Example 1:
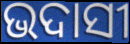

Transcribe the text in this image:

ଭଦାସୀ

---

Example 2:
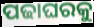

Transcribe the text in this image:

ପଢାଘରକୁ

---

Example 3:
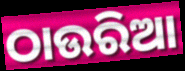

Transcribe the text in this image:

ଠାଉରିଆ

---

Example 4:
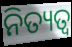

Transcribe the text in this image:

ନିତ୍ୟତ୍ୱ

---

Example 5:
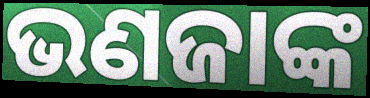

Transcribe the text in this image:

ଭଣଜାଙ୍କ